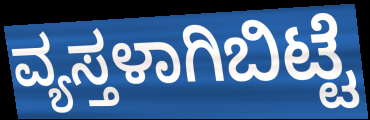
ವ್ಯಸ್ತಳಾಗಿಬಿಟ್ಟೆ